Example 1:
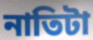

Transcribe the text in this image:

নাতিটা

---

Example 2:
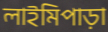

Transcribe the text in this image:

লাইমিপাড়া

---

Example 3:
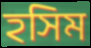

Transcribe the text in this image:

হসিম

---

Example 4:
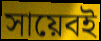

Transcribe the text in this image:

সায়েবই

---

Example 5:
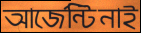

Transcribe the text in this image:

আর্জেন্টিনাই